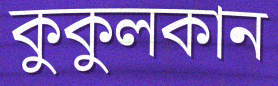
কুকুলকান